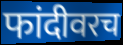
फांदीवरच